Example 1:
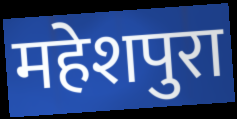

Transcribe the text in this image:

महेशपुरा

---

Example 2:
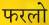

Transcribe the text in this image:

फरलो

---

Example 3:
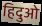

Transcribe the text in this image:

हिदुओ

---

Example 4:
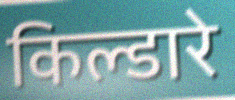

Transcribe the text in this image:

किल्डारे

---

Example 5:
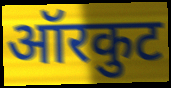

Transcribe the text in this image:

ऑरकुट